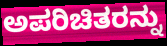
ಅಪರಿಚಿತರನ್ನು